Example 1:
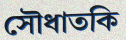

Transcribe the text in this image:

সৌধাতকি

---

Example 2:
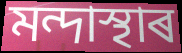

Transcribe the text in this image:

মন্দাস্থাৰ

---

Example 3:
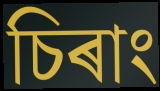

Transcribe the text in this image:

চিৰাং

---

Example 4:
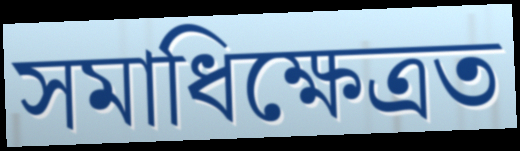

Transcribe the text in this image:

সমাধিক্ষেত্ৰত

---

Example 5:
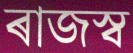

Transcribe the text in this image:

ৰাজস্ব